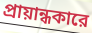
প্রায়ান্ধকারে